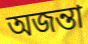
অজন্তা